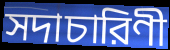
সদাচারিণী